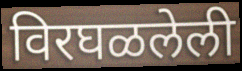
विरघळलेली